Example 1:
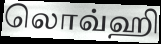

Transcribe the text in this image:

லொவ்ஹி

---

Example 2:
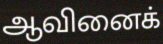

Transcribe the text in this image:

ஆவினைக்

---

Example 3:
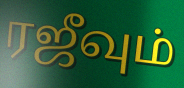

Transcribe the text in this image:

ரஜீவும்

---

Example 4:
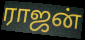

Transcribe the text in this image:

ராஜன்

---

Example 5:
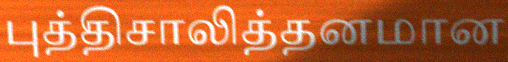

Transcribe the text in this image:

புத்திசாலித்தனமான